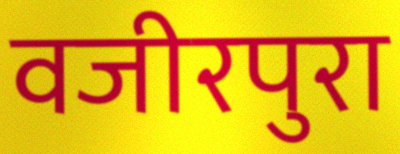
वजीरपुरा